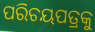
ପରିଚୟପତ୍ରକୁ